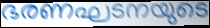
ഭരണഘടനയുടെ